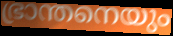
ഭ്രാന്തനെയും